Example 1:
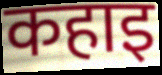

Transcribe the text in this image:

कहाइ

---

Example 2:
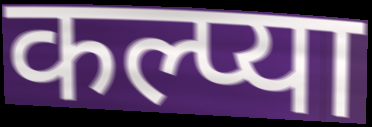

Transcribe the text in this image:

कल्प्या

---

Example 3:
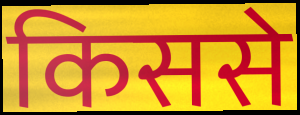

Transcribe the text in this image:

किससे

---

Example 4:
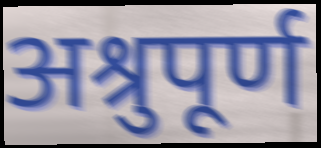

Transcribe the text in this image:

अश्रुपूर्ण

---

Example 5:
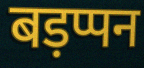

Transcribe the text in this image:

बड़प्पन